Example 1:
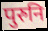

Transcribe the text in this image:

पुरुनि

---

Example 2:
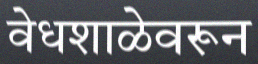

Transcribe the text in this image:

वेधशाळेवरून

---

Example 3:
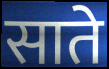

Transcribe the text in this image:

साते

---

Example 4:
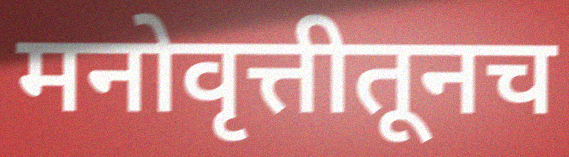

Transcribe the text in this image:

मनोवृत्तीतूनच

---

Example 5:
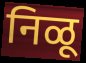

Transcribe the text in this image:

निळू